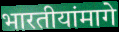
भारतीयांमागे